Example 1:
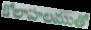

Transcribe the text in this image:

కోలాహలముతో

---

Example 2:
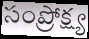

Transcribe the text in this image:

సంప్రోక్ష్య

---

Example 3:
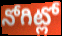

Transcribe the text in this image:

నోగిట్లో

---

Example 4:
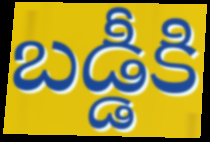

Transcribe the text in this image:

బడ్డీకి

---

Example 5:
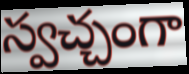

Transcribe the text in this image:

స్వచ్చంగా